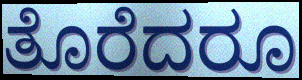
ತೊರೆದರೂ